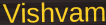
Vishvam